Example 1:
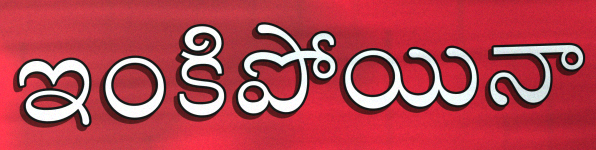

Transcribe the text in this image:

ఇంకిపోయినా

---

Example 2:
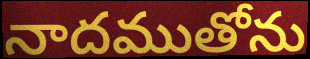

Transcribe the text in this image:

నాదముతోను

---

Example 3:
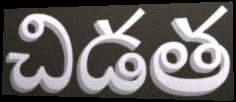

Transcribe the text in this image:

చిడత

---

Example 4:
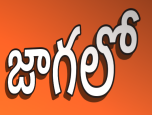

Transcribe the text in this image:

జాగలో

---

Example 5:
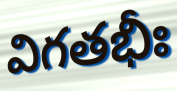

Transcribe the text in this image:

విగతభీః